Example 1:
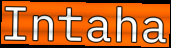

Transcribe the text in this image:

Intaha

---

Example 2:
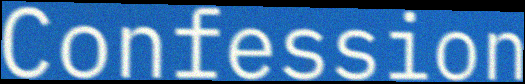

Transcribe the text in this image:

Confession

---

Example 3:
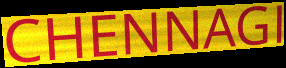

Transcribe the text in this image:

CHENNAGI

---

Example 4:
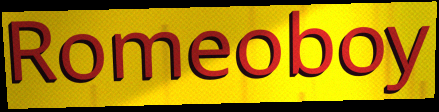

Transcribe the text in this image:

Romeoboy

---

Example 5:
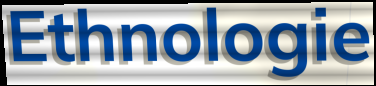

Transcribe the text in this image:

Ethnologie